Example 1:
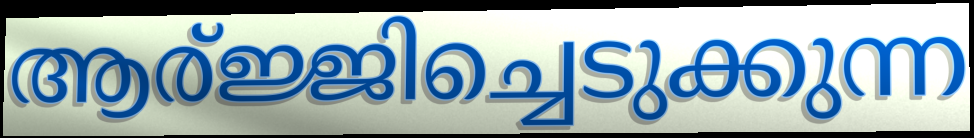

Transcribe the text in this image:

ആര്ജ്ജിച്ചെടുക്കുന്ന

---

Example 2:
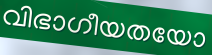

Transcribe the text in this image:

വിഭാഗീയതയോ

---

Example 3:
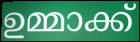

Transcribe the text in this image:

ഉമ്മാക്ക്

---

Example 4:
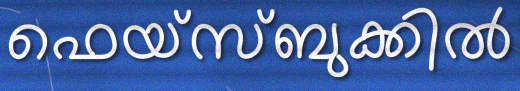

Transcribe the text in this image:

ഫെയ്സ്ബുക്കിൽ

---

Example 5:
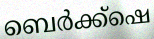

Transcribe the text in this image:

ബെർക്ക്ഷെ